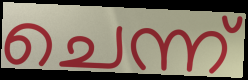
ചെന്ന്